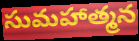
సుమహాత్మన